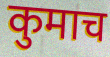
कुमाच